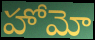
హోమో